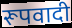
रूपवादी